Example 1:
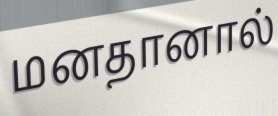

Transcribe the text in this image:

மனதானால்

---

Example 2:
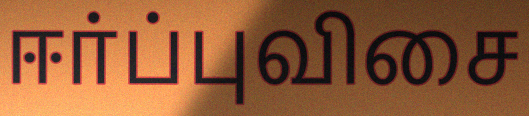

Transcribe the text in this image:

ஈர்ப்புவிசை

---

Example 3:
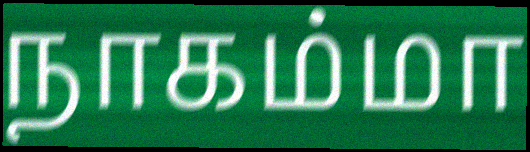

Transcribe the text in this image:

நாகம்மா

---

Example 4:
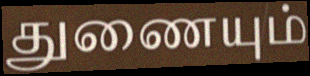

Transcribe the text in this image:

துணையும்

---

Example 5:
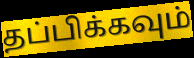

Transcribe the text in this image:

தப்பிக்கவும்